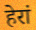
हेरां